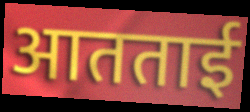
आतताई